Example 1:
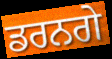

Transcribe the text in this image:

ਡਰਨਗੇ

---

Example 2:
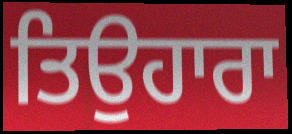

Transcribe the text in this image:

ਤਿਉਹਾਰਾ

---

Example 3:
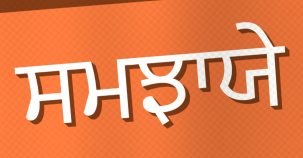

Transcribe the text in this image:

ਸਮਝਾਯੇ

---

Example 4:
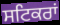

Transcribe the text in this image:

ਸਟਿਕਰਾਂ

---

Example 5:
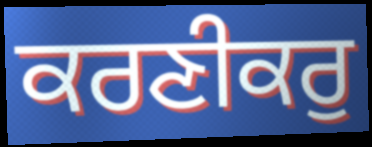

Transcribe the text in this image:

ਕਰਣੀਕਰੁ